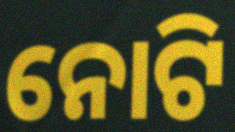
ନୋଟି